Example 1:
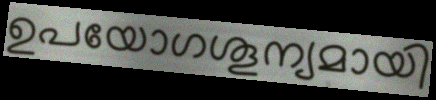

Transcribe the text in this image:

ഉപയോഗശൂന്യമായി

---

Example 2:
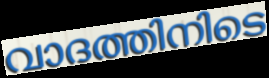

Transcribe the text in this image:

വാദത്തിനിടെ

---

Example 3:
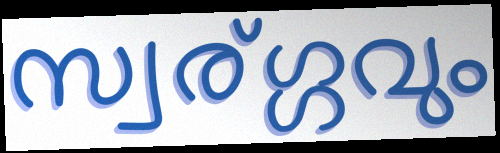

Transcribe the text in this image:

സ്വര്ഗ്ഗവും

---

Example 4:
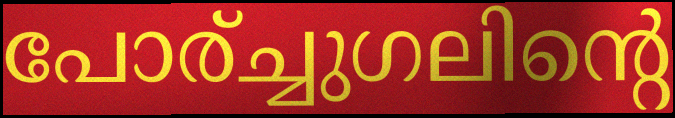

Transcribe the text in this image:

പോര്ച്ചുഗലിന്റെ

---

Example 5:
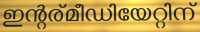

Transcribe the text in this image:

ഇന്റര്മീഡിയേറ്റിന്